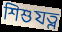
শিশুযত্ন